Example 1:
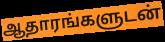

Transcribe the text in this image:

ஆதாரங்களுடன்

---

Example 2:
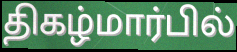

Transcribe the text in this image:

திகழ்மார்பில்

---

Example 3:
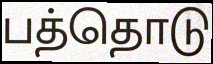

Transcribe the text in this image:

பத்தொடு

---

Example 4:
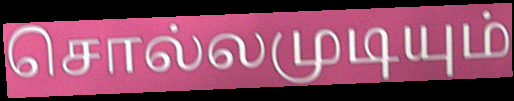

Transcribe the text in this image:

சொல்லமுடியும்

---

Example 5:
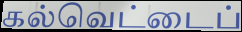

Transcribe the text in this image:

கல்வெட்டைப்